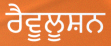
ਰੈਵੂਲੂਸ਼ਨ